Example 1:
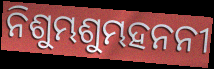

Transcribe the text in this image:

ନିଶୁମ୍ଭଶୁମ୍ଭହନନୀ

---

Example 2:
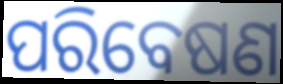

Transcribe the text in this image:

ପରିବେଷଣ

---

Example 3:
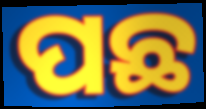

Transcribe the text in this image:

ପଛ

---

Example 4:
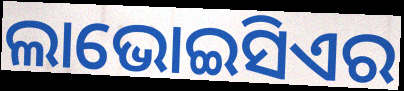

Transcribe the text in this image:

ଲାଭୋଇସିଏର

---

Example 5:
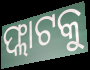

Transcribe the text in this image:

ଫ୍ଲାଟକୁ